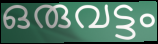
ഒരുവട്ടം